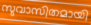
സുവാസിതമായി